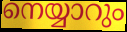
നെയ്യാറും